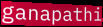
ganapathi